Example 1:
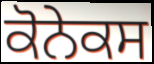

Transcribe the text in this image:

ਕੋਨੇਕਸ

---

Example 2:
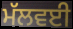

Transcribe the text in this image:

ਮੱਲਵਈ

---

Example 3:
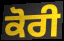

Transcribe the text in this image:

ਕੋਰੀ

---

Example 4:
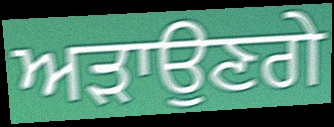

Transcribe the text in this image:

ਅੜਾਉਣਗੇ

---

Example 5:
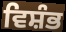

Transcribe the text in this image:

ਵਿਸ਼ੰਭ